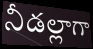
నీడల్లాగా